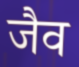
जैव